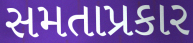
સમતાપ્રકાર